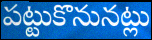
పట్టుకొనునట్లు